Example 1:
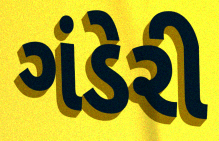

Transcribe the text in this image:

ગંડેરી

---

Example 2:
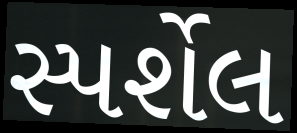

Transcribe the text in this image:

સ્પર્શેલ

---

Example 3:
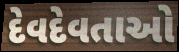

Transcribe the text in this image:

દેવદેવતાઓ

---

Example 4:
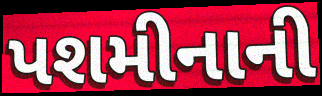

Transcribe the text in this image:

પશમીનાની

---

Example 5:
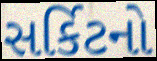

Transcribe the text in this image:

સર્કિટનો